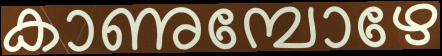
കാണുമ്പോഴേ